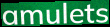
amulets